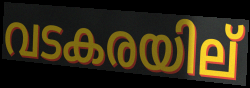
വടകരയില്